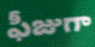
ఫీజుగా